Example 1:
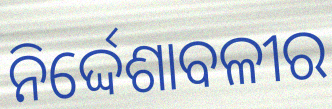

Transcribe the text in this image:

ନିର୍ଦ୍ଦେଶାବଳୀର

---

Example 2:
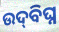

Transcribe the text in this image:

ଉଦ୍‍ବିଘ୍ନ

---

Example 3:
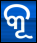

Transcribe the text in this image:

କୂ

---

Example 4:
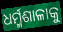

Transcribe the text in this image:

ଧର୍ମ୍ମଶାଳାକୁ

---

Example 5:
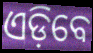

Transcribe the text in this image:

ଏଡ଼ିବେ